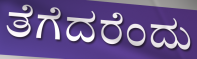
ತೆಗೆದರೆಂದು